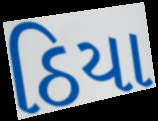
ઠિયા